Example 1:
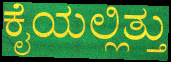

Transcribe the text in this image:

ಕೈಯಲ್ಲಿತ್ತು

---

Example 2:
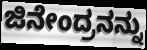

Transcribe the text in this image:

ಜಿನೇಂದ್ರನನ್ನು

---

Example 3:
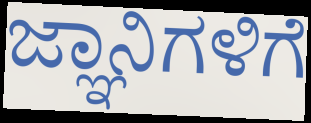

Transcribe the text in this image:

ಜ್ಞಾನಿಗಳಿಗೆ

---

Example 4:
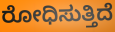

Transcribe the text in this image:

ರೋಧಿಸುತ್ತಿದೆ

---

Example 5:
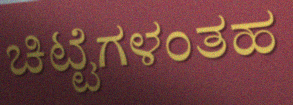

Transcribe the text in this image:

ಚಿಟ್ಟೆಗಳಂತಹ